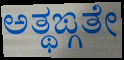
ಅತ್ಥಙ್ಗತೇ